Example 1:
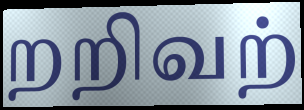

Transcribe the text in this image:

றறிவற்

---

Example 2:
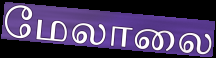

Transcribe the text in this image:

மேலாலை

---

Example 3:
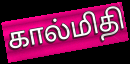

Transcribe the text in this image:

கால்மிதி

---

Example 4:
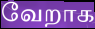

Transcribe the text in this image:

வேறாக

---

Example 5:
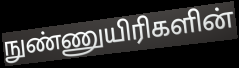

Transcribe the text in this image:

நுண்ணுயிரிகளின்